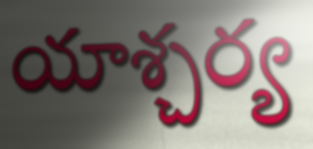
యాశ్చర్య